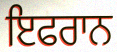
ਇਫਰਾਨ